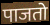
पाजतो